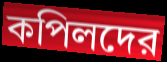
কপিলদের